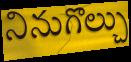
నినుగొల్చు